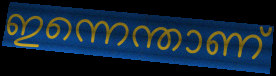
ഇന്നെന്താണ്